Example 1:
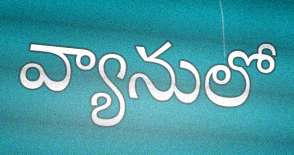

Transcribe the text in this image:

వ్యానులో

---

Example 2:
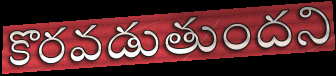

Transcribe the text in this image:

కొరవడుతుందని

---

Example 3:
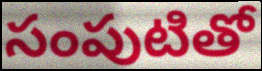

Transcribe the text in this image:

సంపుటితో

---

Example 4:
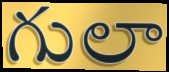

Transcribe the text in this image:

గులా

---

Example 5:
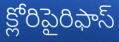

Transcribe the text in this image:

క్లోరిపైరిఫాస్